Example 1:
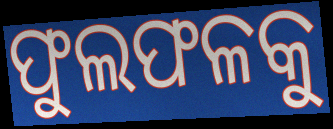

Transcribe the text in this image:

ଫୁଲଫଳକୁ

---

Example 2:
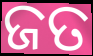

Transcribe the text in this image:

ଜତ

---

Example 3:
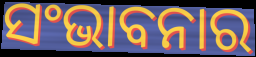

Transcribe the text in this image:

ସଂଭାବନାର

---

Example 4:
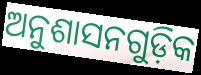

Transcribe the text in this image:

ଅନୁଶାସନଗୁଡ଼ିକ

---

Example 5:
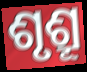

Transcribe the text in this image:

ଶୃଶ୍ରୂ